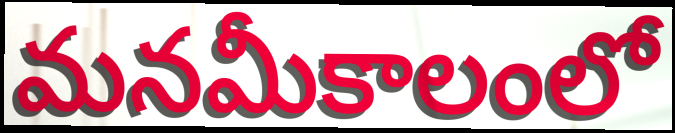
మనమీకాలంలో